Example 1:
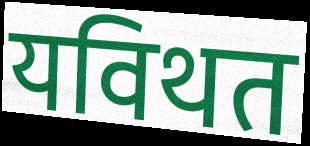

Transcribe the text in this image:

यविथत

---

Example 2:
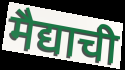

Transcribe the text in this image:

मैद्याची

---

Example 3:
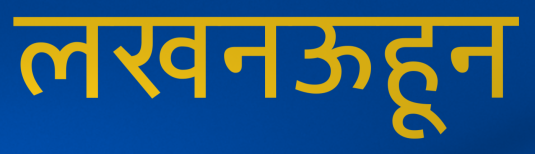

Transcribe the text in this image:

लखनऊहून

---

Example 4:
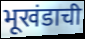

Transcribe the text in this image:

भूखंडाची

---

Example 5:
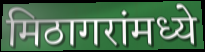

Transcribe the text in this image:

मिठागरांमध्ये